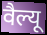
वैल्यू